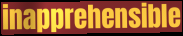
inapprehensible